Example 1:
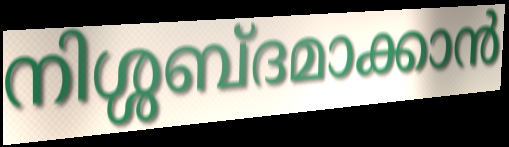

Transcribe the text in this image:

നിശ്ശബ്ദമാക്കാൻ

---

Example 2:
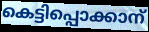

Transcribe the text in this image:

കെട്ടിപ്പൊക്കാന്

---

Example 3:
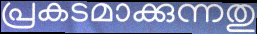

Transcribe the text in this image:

പ്രകടമാക്കുന്നതു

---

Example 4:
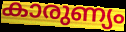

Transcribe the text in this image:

കാരുണ്യം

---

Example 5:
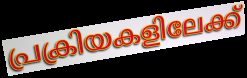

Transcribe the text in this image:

പ്രക്രിയകളിലേക്ക്